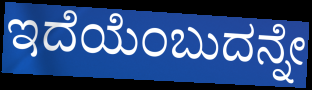
ಇದೆಯೆಂಬುದನ್ನೇ